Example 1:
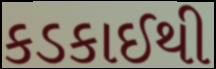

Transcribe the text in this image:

કડકાઈથી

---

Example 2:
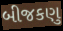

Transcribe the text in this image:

બીજકણુ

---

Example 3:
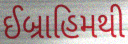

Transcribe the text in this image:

ઈબ્રાહિમથી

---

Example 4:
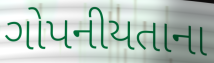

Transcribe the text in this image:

ગોપનીયતાના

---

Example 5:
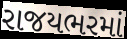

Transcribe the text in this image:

રાજયભરમાં